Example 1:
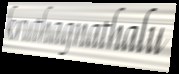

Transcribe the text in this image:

kruthagnathalu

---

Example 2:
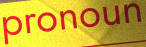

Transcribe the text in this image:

pronoun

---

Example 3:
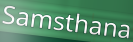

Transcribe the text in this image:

Samsthana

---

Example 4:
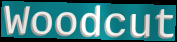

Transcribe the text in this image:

Woodcut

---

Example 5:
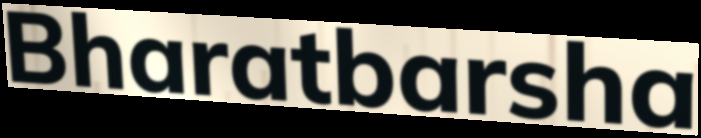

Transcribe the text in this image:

Bharatbarsha